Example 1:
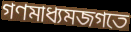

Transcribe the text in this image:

গণমাধ্যমজগতে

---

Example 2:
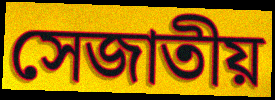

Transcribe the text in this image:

সেজাতীয়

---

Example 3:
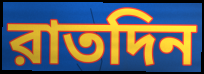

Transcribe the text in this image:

রাতদিন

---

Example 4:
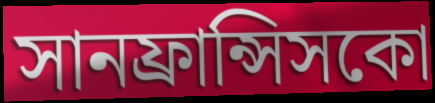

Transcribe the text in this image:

সানফ্রান্সিসকো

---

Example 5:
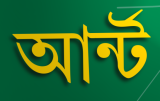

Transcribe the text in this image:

আর্ন্ট